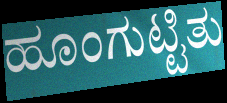
ಹೂಂಗುಟ್ಟಿತು